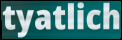
tyatlich